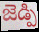
జెడ్పి